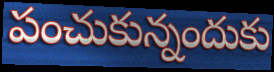
పంచుకున్నందుకు